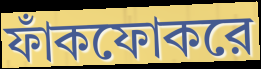
ফাঁকফোকরে